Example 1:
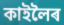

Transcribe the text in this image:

কাইলৈৰ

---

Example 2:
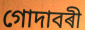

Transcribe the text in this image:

গোদাবৰী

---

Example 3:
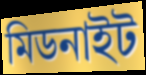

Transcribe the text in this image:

মিডনাইট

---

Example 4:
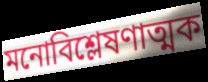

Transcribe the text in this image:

মনোবিশ্লেষণাত্মক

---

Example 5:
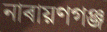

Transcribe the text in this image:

নাৰায়ণগঞ্জ